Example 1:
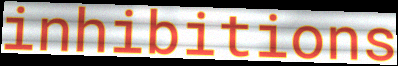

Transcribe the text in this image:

inhibitions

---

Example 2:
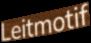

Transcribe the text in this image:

Leitmotif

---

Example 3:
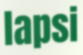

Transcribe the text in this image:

lapsi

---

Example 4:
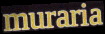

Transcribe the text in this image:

muraria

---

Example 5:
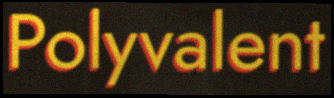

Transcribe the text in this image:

Polyvalent